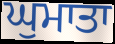
ਘੁਮਾਤਾ